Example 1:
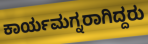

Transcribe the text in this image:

ಕಾರ್ಯಮಗ್ನರಾಗಿದ್ದರು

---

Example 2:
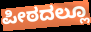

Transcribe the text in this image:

ಪೀಠದಲ್ಲೂ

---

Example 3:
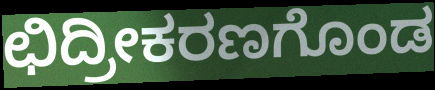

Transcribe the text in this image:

ಛಿದ್ರೀಕರಣಗೊಂಡ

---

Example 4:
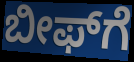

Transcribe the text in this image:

ಬೀಫ್‌ಗೆ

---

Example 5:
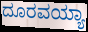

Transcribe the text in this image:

ದೂರವಯ್ಯಾ